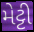
મેટ્ટી